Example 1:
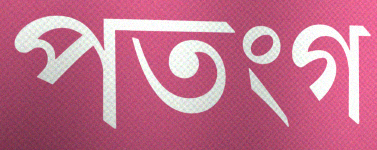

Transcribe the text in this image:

পতংগ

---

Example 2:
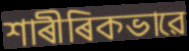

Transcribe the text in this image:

শাৰীৰিকভাৱে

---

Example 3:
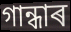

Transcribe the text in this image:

গান্ধাৰ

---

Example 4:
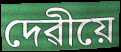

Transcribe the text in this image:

দেৱীয়ে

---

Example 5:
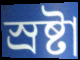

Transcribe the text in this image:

স্ৰষ্টা